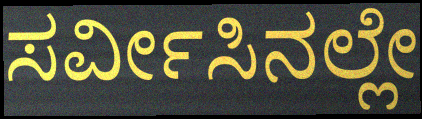
ಸರ್ವೀಸಿನಲ್ಲೇ